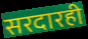
सरदारही